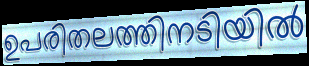
ഉപരിതലത്തിനടിയിൽ